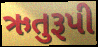
ઋતુરૂપી